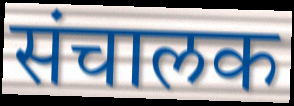
संचालक